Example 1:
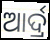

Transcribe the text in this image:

ଆର୍ଦ୍ର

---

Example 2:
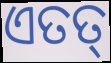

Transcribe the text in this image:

ଏତତ୍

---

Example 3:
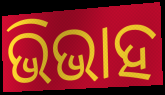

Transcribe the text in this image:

ଭିଭାହ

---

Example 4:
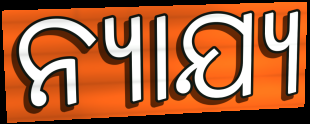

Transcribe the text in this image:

ନ୍ୟାଯ୍ୟ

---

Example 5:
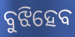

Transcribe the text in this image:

ବୁଝିହେବ